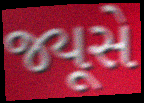
જ્યૂસે